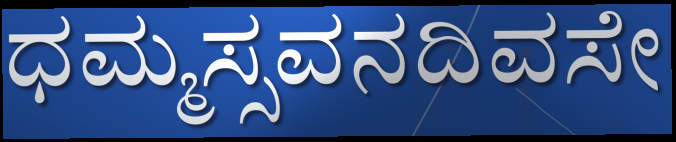
ಧಮ್ಮಸ್ಸವನದಿವಸೇ